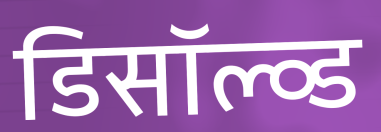
डिसॉल्व्ड